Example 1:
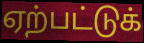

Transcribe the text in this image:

ஏற்பட்டுக்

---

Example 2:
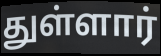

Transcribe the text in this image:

துள்ளார்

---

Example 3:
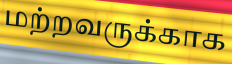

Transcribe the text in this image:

மற்றவருக்காக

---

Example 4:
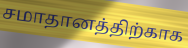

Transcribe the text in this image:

சமாதானத்திற்காக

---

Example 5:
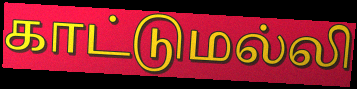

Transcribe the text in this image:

காட்டுமல்லி